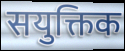
सयुक्तिक